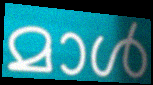
മാൾ